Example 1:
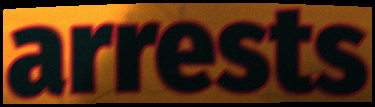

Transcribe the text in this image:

arrests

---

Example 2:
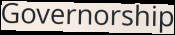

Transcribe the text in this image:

Governorship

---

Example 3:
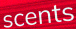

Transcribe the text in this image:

scents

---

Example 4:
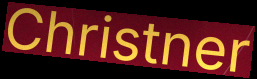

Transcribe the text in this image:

Christner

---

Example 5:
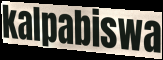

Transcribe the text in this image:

kalpabiswa